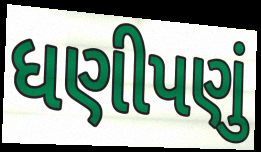
ધણીપણું